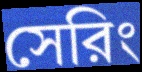
সেরিং